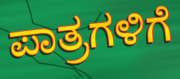
ಪಾತ್ರಗಳಿಗೆ